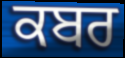
ਕਬਰ